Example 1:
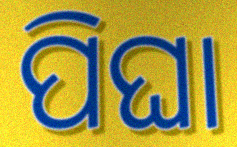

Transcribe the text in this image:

ପିଘା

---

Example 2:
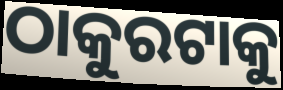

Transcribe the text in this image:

ଠାକୁରଟାକୁ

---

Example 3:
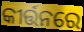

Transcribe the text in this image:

କୀର୍ତ୍ତନରେ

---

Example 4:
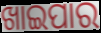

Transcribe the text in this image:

ଖାଇପାର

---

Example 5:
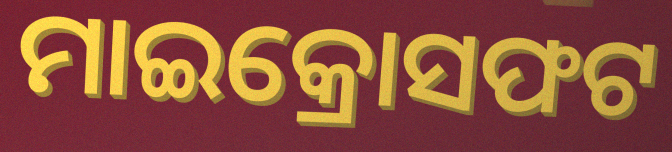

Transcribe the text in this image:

ମାଇକ୍ରୋସଫଟ